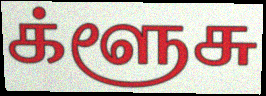
க்ளூசு